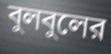
বুলবুলের